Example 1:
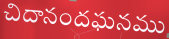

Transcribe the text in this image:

చిదానందఘనము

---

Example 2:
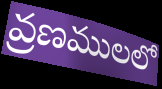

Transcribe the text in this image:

వ్రణములలో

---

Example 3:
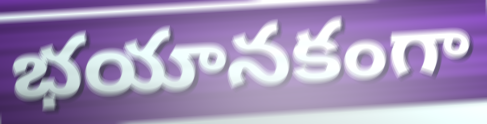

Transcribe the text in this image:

భయానకంగా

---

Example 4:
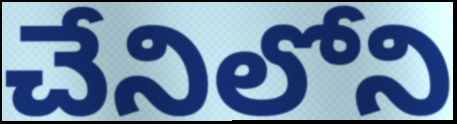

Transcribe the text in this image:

చేనిలోని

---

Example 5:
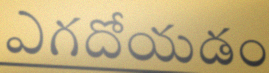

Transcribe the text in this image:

ఎగదోయడం